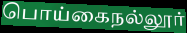
பொய்கைநல்லூர்